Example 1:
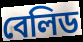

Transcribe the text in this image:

বেলিড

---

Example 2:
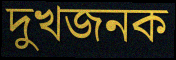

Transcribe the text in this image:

দুখজনক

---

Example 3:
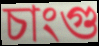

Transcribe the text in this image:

চাংগু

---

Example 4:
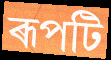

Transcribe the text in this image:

ৰূপটি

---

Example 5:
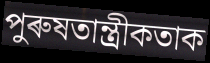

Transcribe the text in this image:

পুৰুষতান্ত্ৰীকতাক